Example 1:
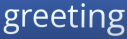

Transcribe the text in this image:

greeting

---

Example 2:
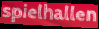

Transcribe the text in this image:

spielhallen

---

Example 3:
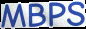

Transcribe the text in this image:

MBPS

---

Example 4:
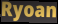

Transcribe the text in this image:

Ryoan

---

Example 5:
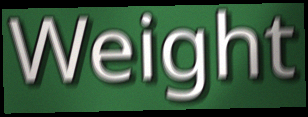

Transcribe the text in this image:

Weight